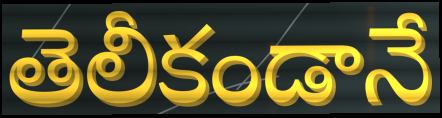
తెలీకండానే